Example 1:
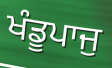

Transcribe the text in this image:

ਖੰਡੂਪਾਜੁ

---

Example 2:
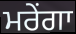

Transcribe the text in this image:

ਮਰੇਂਗਾ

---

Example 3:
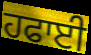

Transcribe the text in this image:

ਹਫਾਈ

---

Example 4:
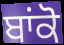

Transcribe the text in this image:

ਬਾਂਕੋ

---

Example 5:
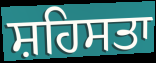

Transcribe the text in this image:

ਸ਼ਹਿਸਤਾ